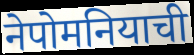
नेपोमनियाची